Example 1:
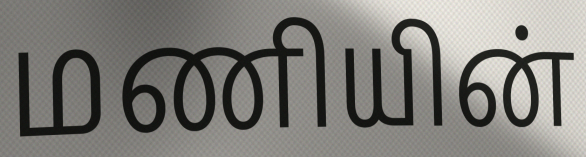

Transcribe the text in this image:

மணியின்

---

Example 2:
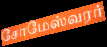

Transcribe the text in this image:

சோமேஸ்வரர்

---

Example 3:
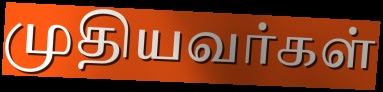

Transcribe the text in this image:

முதியவர்கள்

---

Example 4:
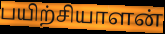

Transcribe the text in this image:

பயிற்சியாளன்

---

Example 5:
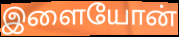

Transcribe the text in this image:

இளையோன்